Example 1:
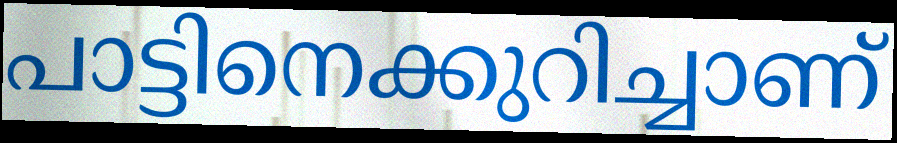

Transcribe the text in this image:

പാട്ടിനെക്കുറിച്ചാണ്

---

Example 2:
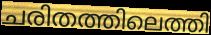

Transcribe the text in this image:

ചരിതത്തിലെത്തി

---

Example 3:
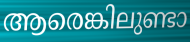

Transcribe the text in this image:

ആരെങ്കിലുണ്ടാ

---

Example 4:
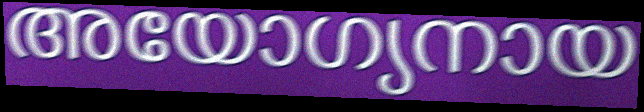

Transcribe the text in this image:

അയോഗ്യനായ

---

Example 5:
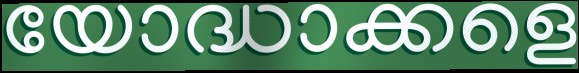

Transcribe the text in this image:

യോദ്ധാക്കളെ